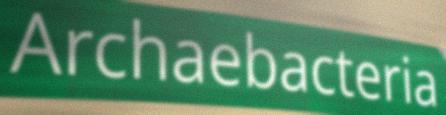
Archaebacteria